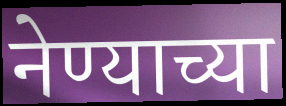
नेण्याच्या